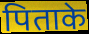
पिताके